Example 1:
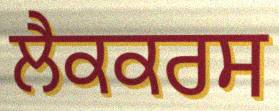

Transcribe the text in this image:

ਲੈਕਕਰਸ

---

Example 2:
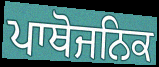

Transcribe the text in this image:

ਪਾਥੋਜਨਿਕ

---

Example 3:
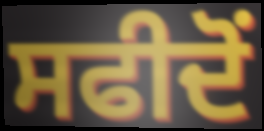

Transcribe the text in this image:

ਸਫੀਦੋਂ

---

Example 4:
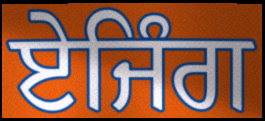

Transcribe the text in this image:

ਏਜਿੰਗ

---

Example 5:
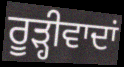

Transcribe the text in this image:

ਰੂੜ੍ਹੀਵਾਦਾਂ